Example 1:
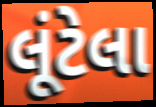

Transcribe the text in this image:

લૂંટેલા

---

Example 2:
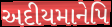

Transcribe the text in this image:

અદીયમાનેપિ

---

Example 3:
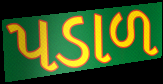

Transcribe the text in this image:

પડાળ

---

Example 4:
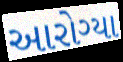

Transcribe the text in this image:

આરોગ્યા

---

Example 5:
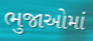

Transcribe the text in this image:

ભુજાઓમાં